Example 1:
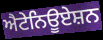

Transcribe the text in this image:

ਐਟੇਨਿਊਏਸ਼ਨ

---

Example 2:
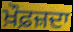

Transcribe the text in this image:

ਖ਼ੌਫ਼ਜ਼ਦਾ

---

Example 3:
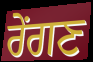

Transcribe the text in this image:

ਰੇਂਗਣ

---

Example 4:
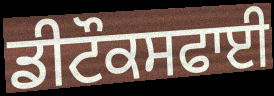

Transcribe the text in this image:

ਡੀਟੌਕਸਫਾਈ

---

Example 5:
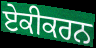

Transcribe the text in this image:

ਏਕੀਕਰਨ